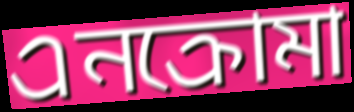
এনক্রোমা